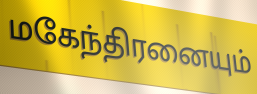
மகேந்திரனையும்